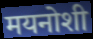
मयनोशी